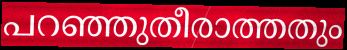
പറഞ്ഞുതീരാത്തതും